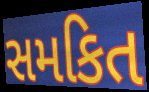
સમકિત